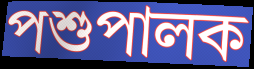
পশুপালক